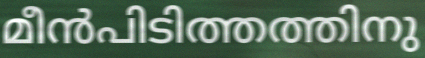
മീൻപിടിത്തത്തിനു